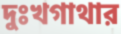
দুঃখগাথার